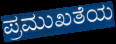
ಪ್ರಮುಖತೆಯ